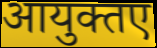
आयुक्तए